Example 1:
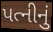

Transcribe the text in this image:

પત્નીનું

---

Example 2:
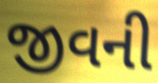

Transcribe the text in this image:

જીવની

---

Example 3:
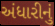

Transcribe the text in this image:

અંધારીનું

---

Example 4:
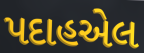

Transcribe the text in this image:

પદાહએલ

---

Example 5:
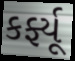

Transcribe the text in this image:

કર્ફ્યૂ